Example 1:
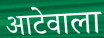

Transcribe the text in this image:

आटेवाला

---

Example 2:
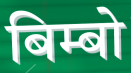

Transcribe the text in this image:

बिम्बो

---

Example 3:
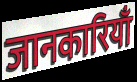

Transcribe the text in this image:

जानकारियाँ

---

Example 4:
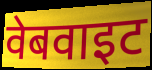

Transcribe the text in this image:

वेबवाइट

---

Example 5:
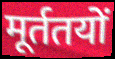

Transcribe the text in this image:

मूर्ततयों